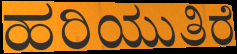
ಹರಿಯುತಿರೆ